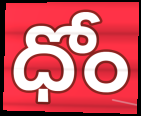
ధోం